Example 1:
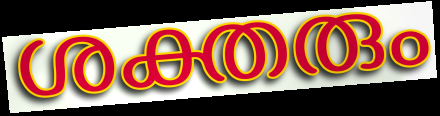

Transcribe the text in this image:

ശക്തരും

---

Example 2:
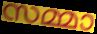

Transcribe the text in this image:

സമ്മാ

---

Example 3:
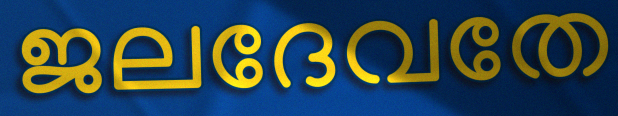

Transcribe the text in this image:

ജലദേവതേ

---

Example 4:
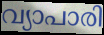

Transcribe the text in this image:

വ്യാപാരി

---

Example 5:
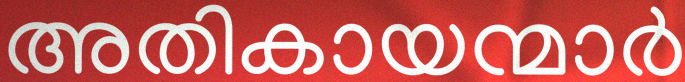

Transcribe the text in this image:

അതികായന്മാർ